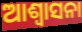
ଆଶ୍ଵାସନା